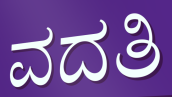
ವದತಿ